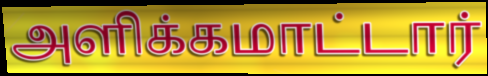
அளிக்கமாட்டார்